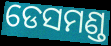
ଡେସମଣ୍ଡ